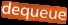
dequeue